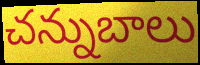
చన్నుబాలు